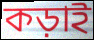
কড়াই